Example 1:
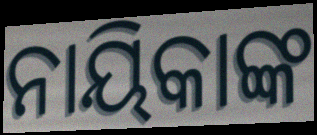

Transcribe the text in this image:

ନାୟିକାଙ୍କ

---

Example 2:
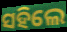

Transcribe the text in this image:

ସହିଲେ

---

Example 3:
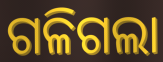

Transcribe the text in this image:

ଗଳିଗଲା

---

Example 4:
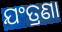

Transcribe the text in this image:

ଯଂତ୍ରଣା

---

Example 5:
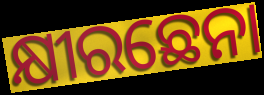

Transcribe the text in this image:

କ୍ଷୀରଛେନା